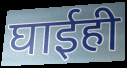
घाईही